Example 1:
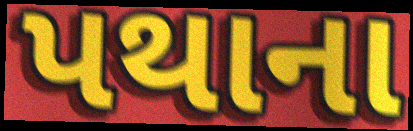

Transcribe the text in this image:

પથાના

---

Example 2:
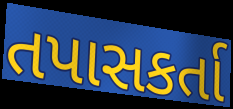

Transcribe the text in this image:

તપાસકર્તા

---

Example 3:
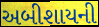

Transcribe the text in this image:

અબીશાયની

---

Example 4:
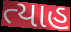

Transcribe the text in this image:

ત્યાહ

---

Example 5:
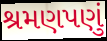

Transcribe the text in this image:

શ્રમણપણું